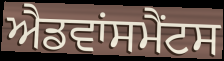
ਐਡਵਾਂਸਮੈਂਟਸ